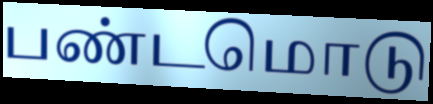
பண்டமொடு